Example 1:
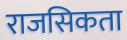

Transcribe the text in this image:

राजसिकता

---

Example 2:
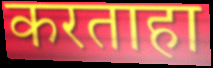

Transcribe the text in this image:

करताहा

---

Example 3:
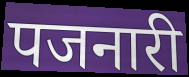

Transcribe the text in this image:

पजनारी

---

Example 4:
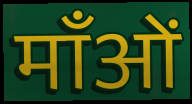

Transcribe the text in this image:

माँओं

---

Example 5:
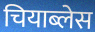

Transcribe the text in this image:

चियाब्लेस